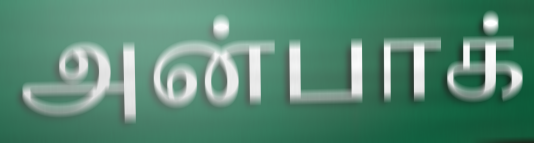
அன்பாக்